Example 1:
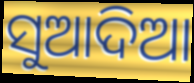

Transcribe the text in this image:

ସୁଆଦିଆ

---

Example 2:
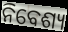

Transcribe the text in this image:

ନିବେଶ୍ୟ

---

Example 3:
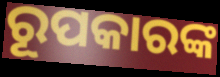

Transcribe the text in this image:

ରୂପକାରଙ୍କ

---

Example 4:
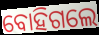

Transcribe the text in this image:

ବୋହିଗଲେ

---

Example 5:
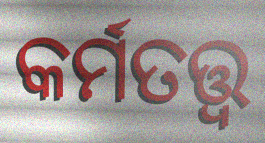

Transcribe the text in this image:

କର୍ମତତ୍ତ୍ୱ